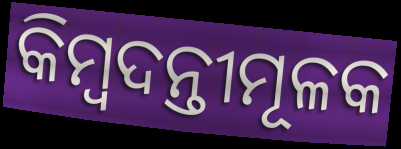
କିମ୍ବଦନ୍ତୀମୂଳକ